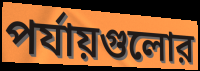
পর্যায়গুলোর